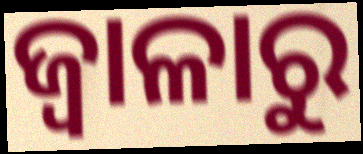
ଜ୍ଵାଳାରୁ